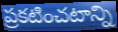
ప్రకటించటాన్ని